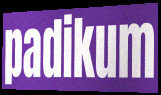
padikum